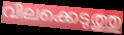
വിലക്കെടുത്തു